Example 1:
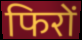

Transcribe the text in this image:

फिरों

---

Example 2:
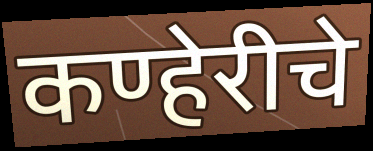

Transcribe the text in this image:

कण्हेरीचे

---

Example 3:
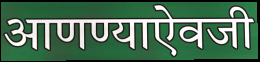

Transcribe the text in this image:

आणण्याऐवजी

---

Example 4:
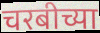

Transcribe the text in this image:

चरबीच्या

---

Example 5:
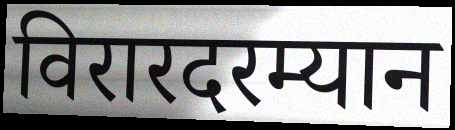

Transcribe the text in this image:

विरारदरम्यान